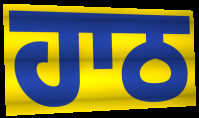
ਹਾਠ